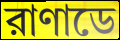
রাণাডে